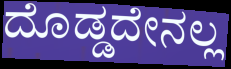
ದೊಡ್ಡದೇನಲ್ಲ